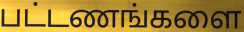
பட்டணங்களை